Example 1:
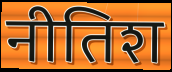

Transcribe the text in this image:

नीतिश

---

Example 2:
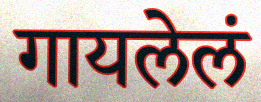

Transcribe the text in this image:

गायलेलं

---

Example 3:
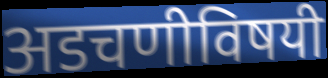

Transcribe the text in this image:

अडचणीविषयी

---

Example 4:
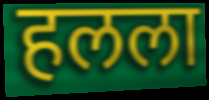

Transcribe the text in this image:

हलला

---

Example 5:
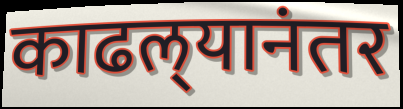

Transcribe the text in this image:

काढल्यानंतर